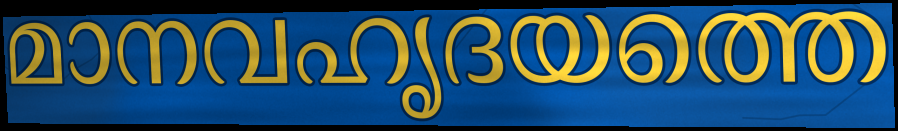
മാനവഹൃദയത്തെ